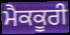
ਮੈਕਕੂਰੀ